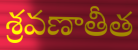
శ్రవణాతీత